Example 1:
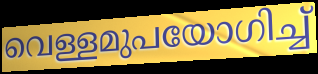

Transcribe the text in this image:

വെള്ളമുപയോഗിച്ച്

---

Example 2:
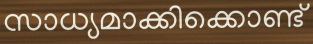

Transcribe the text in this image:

സാധ്യമാക്കിക്കൊണ്ട്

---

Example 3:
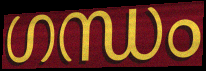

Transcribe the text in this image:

ഗന്ധം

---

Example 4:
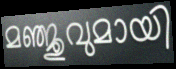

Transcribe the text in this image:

മഞ്ജുവുമായി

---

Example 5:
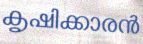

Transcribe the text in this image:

കൃഷിക്കാരൻ